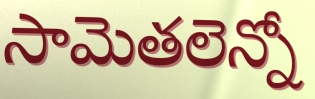
సామెతలెన్నో